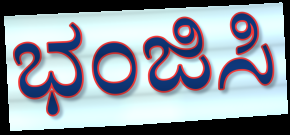
ಭಂಜಿಸಿ